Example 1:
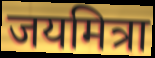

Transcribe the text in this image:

जयमित्रा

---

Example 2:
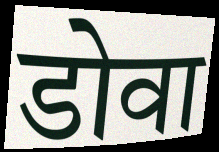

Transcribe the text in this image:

डोवा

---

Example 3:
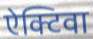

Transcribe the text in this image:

ऐक्टिवा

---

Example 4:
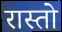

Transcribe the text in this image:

रास्तो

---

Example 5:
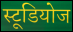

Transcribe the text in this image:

स्टूडियोज